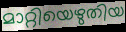
മാറ്റിയെഴുതിയ